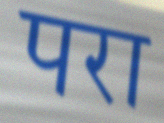
परा